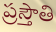
ప్రస్తౌతి